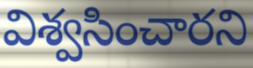
విశ్వసించారని